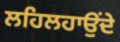
ਲਹਿਲਹਾਉਂਦੇ